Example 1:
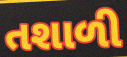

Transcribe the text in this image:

તશાળી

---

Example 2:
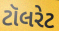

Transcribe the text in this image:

ટૉલરેટ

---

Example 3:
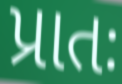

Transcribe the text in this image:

પ્રાતઃ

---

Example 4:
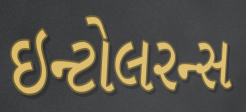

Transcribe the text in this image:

ઇન્ટોલરન્સ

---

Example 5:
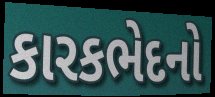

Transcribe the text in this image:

કારકભેદનો